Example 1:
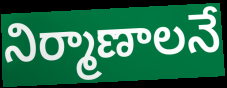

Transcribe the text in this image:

నిర్మాణాలనే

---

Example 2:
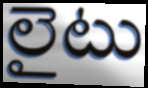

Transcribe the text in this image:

లైటు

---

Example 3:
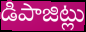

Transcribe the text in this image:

డిపాజిట్లు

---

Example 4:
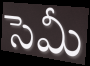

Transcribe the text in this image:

సెమీ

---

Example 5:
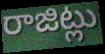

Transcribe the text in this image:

రాజిట్లు